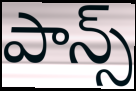
పాన్స్